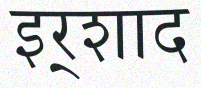
इर्शाद